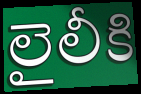
లైలీకి